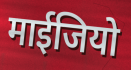
माईजियो